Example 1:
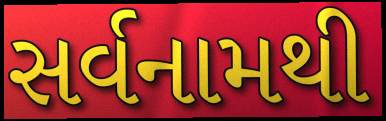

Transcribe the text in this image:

સર્વનામથી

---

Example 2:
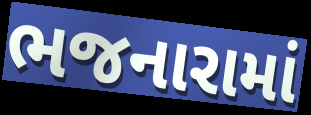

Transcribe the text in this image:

ભજનારામાં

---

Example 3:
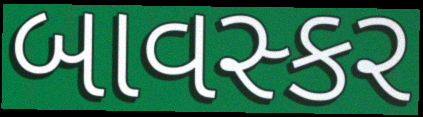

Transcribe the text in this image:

બાવસ્કર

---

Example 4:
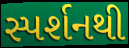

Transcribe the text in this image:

સ્પર્શનથી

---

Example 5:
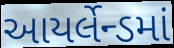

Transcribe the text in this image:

આયર્લેન્ડમાં